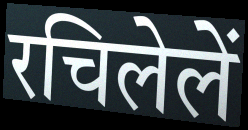
रचिलेलें